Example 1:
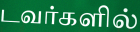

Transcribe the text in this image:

டவர்களில்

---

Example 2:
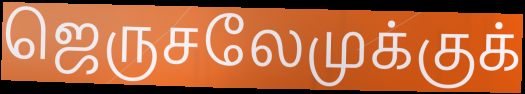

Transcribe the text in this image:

ஜெருசலேமுக்குக்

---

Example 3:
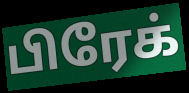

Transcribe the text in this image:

பிரேக்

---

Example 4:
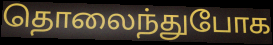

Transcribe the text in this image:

தொலைந்துபோக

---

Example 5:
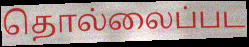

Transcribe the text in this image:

தொல்லைப்பட